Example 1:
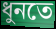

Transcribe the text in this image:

ধুনতে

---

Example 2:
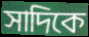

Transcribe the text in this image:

সাদিকে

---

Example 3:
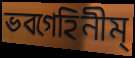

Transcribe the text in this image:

ভবগেহিনীম্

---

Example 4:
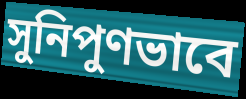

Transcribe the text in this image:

সুনিপুণভাবে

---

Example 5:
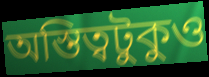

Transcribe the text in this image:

অস্তিত্বটুকুও